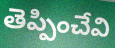
తెప్పించేవి